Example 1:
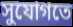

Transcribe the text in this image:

সুযোগতে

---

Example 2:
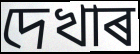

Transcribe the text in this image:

দেখাৰ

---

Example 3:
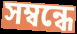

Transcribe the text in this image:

সম্বন্ধে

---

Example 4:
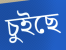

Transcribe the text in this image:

চুইছে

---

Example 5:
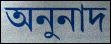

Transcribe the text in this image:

অনুনাদ